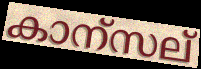
കാന്സല്